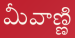
మీవాణ్ణి